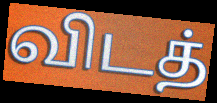
விடத்